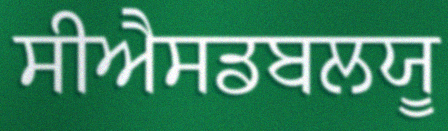
ਸੀਐਸਡਬਲਯੂ